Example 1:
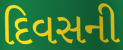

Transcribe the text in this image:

દિવસની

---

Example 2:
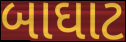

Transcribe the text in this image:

બાઘાટ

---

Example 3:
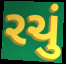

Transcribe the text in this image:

રચું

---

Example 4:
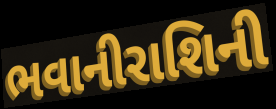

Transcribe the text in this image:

ભવાનીરાશિની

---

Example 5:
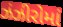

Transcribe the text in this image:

ઝંઝીરોમાં